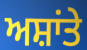
ਅਸ਼ਾਂਤੇ